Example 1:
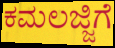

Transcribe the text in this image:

ಕಮಲಜ್ಜಿಗೆ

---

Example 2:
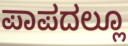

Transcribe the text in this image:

ಪಾಪದಲ್ಲೂ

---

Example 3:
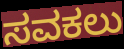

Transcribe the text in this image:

ಸವಕಲು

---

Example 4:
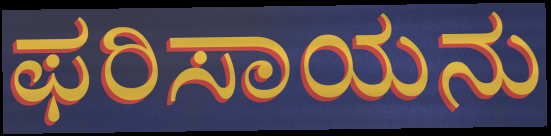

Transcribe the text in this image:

ಫರಿಸಾಯನು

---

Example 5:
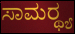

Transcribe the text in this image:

ಸಾಮರ್‍ಥ್ಯ